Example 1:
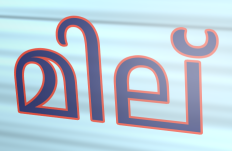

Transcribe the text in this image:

മില്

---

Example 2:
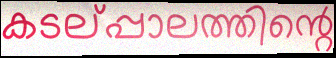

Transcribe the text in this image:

കടല്പ്പാലത്തിന്റെ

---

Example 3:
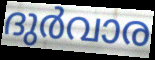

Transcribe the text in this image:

ദുർവാര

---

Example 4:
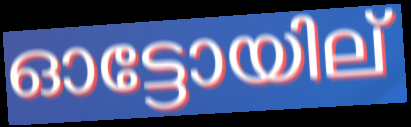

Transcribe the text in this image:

ഓട്ടോയില്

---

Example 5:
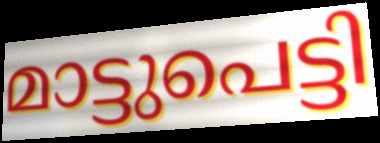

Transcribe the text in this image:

മാട്ടുപെട്ടി